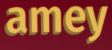
amey